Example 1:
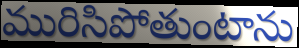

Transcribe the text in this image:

మురిసిపోతుంటాను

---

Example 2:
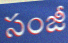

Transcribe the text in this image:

సంజీ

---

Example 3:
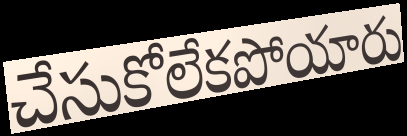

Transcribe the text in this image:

చేసుకోలేకపోయారు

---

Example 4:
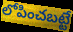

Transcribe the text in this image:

లోపించబట్టే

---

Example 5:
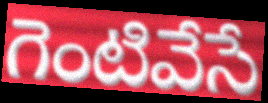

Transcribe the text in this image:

గెంటివేసే